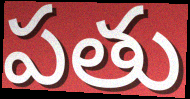
పతు